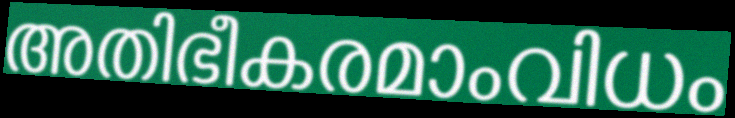
അതിഭീകരമാംവിധം